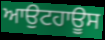
ਆਉਟਹਾਊਸ